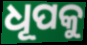
ଧୂପକୁ